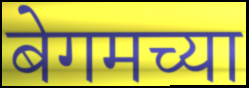
बेगमच्या